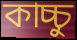
কাচ্চু